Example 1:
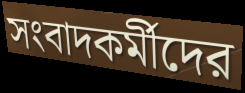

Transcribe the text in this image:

সংবাদকর্মীদের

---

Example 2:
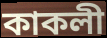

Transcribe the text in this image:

কাকলী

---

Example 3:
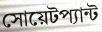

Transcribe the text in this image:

সোয়েটপ্যান্ট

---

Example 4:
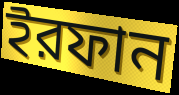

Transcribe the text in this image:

ইরফান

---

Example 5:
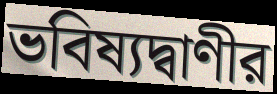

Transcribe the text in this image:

ভবিষ্যদ্বাণীর